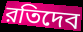
রতিদেব